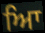
ਆਿ